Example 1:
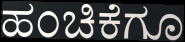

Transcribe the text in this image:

ಹಂಚಿಕೆಗೂ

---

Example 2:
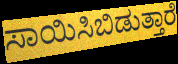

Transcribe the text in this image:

ಸಾಯಿಸಿಬಿಡುತ್ತಾರೆ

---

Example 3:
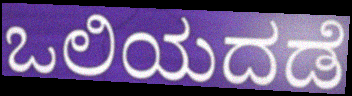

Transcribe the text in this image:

ಒಲಿಯದಡೆ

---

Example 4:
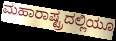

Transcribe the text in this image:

ಮಹಾರಾಷ್ಟ್ರದಲ್ಲಿಯೂ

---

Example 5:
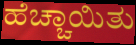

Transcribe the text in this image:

ಹೆಚ್ಚಾಯಿತು